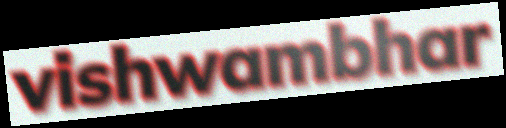
vishwambhar